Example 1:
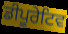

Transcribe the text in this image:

ਡੀਪੂਰੇਟਿਵ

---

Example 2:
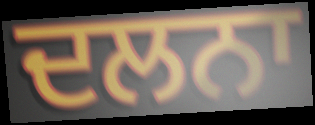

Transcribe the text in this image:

ਦਲਨਾ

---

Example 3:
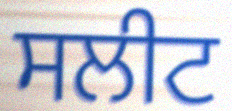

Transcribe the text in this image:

ਸਲੀਟ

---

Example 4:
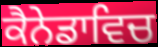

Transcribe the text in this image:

ਕੈਨੇਡਾਵਿਚ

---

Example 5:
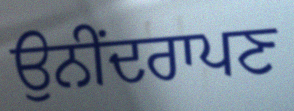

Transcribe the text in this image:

ਉਨੀਂਦਰਾਪਣ